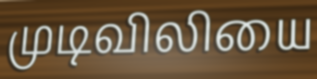
முடிவிலியை